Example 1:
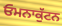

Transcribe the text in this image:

ਓਮਨਾਕੁੱਟਨ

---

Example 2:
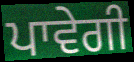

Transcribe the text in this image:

ਪਾਵੇਗੀ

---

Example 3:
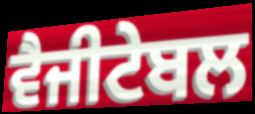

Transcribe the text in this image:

ਵੈਜੀਟੇਬਲ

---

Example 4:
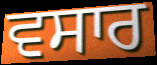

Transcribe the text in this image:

ਵਸਾਰ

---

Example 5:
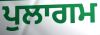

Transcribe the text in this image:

ਪੁਲਾਗਮ